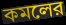
কমলের